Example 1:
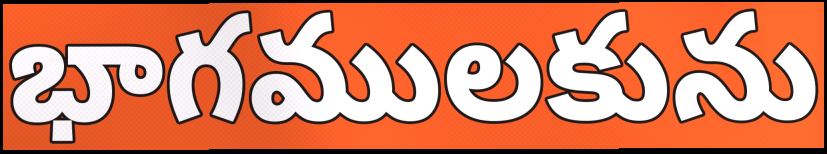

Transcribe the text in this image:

భాగములకును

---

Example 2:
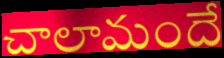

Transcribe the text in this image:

చాలామందే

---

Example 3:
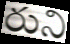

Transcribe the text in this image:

రుని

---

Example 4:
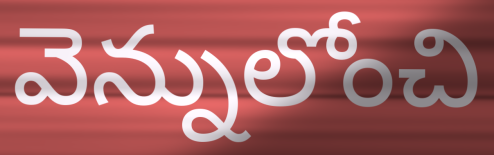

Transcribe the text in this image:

వెన్నులోంచి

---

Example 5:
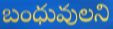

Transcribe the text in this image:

బంధువులని